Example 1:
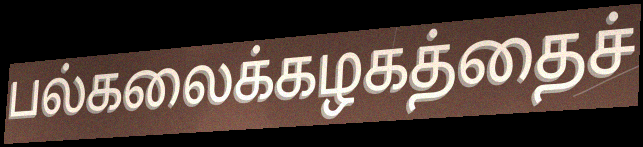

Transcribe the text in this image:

பல்கலைக்கழகத்தைச்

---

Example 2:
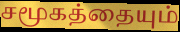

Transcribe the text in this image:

சமூகத்தையும்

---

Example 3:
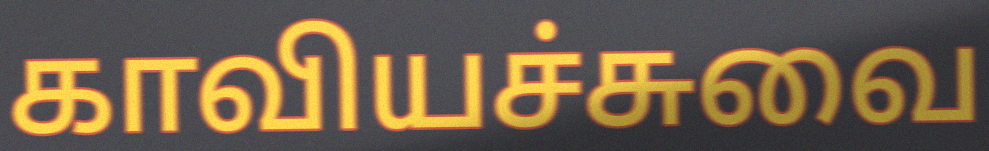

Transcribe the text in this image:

காவியச்சுவை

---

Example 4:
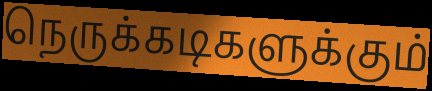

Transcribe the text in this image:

நெருக்கடிகளுக்கும்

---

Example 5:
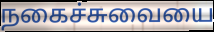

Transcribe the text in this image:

நகைச்சுவையை